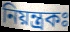
নিয়ন্ত্রকঃ